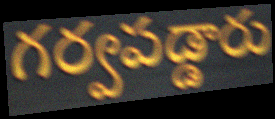
గర్వపడ్డారు